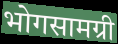
भोगसामग्री